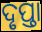
ଦୃପ୍ତା